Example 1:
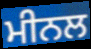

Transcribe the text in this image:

ਮੀਨਲ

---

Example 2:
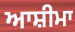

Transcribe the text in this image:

ਆਸ਼ੀਮਾ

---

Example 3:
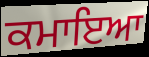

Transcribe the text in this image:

ਕਮਾਇਆ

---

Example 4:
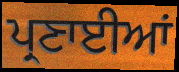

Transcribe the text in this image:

ਪ੍ਰਣਾਈਆਂ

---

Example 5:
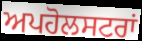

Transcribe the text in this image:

ਅਪਹੋਲਸਟਰਾਂ